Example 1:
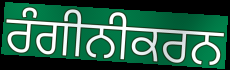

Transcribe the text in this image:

ਰੰਗੀਨੀਕਰਨ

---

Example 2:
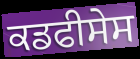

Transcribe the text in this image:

ਕਡਫੀਸੇਸ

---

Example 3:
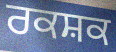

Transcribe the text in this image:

ਰਕਸ਼ਕ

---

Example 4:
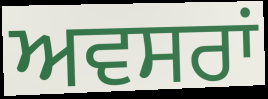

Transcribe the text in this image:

ਅਵਸਰਾਂ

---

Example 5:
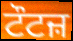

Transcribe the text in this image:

ਟੌਟਜ਼